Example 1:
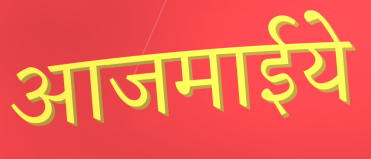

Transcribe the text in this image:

आजमाईये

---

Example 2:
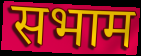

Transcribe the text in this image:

सभाम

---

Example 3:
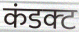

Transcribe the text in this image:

कंडक्‍ट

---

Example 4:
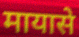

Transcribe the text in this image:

मायासे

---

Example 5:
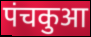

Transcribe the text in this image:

पंचकुआ